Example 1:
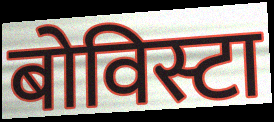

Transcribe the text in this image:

बोविस्टा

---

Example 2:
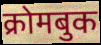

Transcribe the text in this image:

क्रोमबुक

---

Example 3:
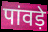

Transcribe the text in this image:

पांवड़े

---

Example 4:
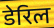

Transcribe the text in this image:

डेरिल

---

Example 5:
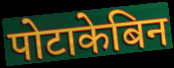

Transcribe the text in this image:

पोटाकेबिन